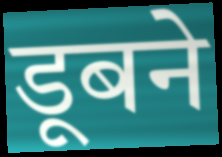
डूबने